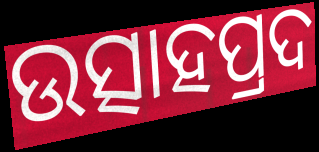
ଉତ୍ସାହପ୍ରଦ